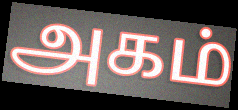
அகம்